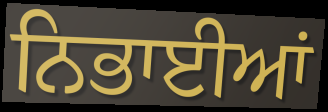
ਨਿਭਾਈਆਂ